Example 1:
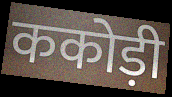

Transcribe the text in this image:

ककोड़ी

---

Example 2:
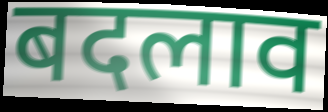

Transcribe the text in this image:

बदलाव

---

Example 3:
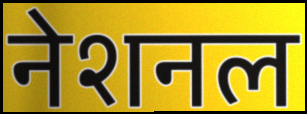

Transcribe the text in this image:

नेशनल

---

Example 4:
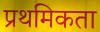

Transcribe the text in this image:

प्रथमिकता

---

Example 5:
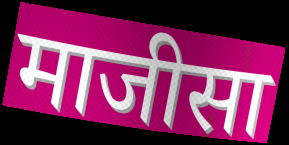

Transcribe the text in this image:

माजीसा